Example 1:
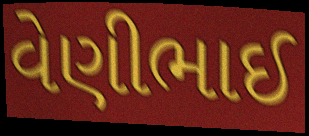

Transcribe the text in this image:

વેણીભાઈ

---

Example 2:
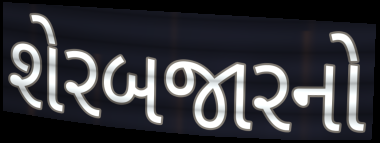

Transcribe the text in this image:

શેરબજારનો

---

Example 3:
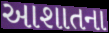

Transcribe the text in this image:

આશાતના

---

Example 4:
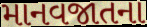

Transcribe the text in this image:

માનવજાતના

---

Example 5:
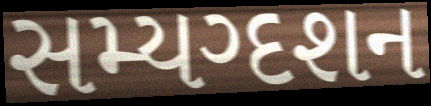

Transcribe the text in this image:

સમ્યગ્દશન